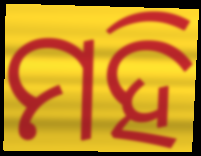
ମହି